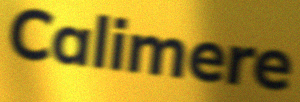
Calimere